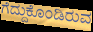
ಗೆದ್ದುಕೊಂಡಿರುವ